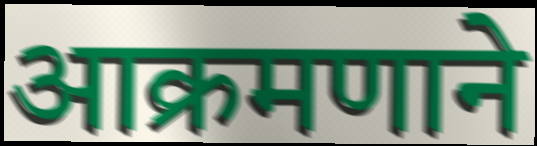
आक्रमणाने